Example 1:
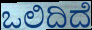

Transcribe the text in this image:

ಒಲಿದಿದೆ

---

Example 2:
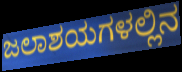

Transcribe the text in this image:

ಜಲಾಶಯಗಳಲ್ಲಿನ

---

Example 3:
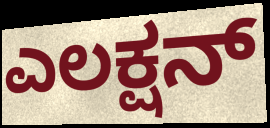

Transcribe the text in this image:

ಎಲಕ್ಷನ್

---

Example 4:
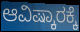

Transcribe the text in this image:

ಆವಿಷ್ಕಾರಕ್ಕೆ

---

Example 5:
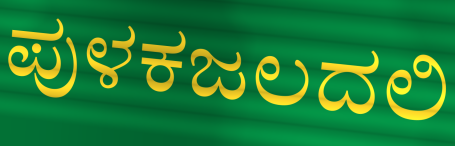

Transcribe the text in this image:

ಪುಳಕಜಲದಲಿ